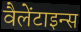
वैलेंटाइन्स